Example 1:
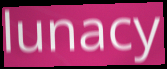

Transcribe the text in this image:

lunacy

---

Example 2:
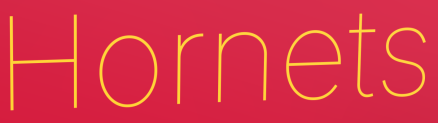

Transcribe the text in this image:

Hornets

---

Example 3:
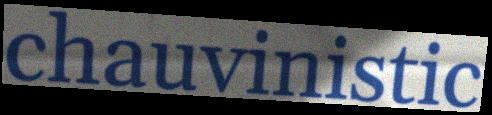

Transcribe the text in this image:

chauvinistic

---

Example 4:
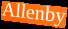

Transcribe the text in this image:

Allenby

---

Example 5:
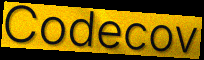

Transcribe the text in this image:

Codecov